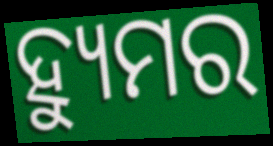
ହ୍ୟୁମର